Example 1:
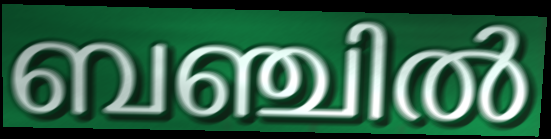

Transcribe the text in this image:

ബഞ്ചിൽ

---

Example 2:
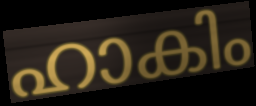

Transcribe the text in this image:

ഹാകിം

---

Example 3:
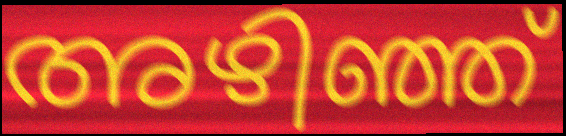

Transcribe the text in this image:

അഴിഞ്ഞ്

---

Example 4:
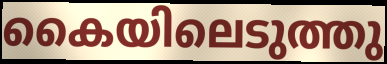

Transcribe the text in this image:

കൈയിലെടുത്തു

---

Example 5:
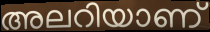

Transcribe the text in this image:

അലറിയാണ്